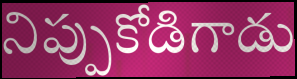
నిప్పుకోడిగాడు